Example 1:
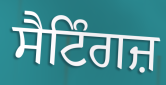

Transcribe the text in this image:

ਸੈਟਿੰਗਜ਼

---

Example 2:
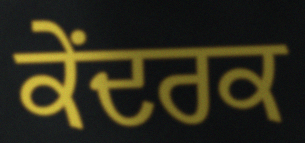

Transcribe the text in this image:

ਕੇਂਦਰਕ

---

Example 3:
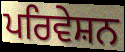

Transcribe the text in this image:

ਪਰਿਵੇਸ਼ਨ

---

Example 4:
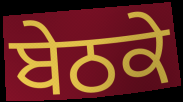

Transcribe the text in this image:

ਬੇਠਕੇ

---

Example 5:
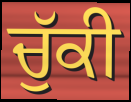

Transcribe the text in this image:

ਚੁੱਕੀ